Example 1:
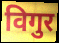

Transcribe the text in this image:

विगुर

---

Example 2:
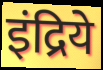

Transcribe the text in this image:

इंद्रिये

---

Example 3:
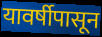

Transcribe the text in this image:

यावर्षीपासून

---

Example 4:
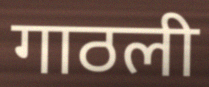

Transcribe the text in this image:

गाठली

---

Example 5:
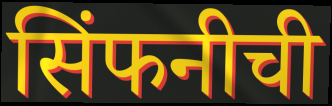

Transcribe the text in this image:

सिंफनीची